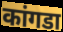
कांगडा